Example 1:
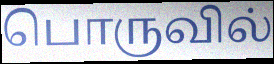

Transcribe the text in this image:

பொருவில்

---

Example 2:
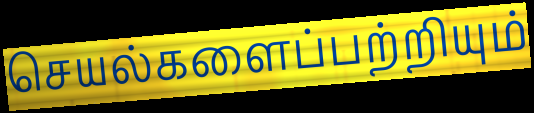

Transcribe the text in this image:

செயல்களைப்பற்றியும்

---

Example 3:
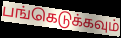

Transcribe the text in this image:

பங்கெடுக்கவும்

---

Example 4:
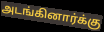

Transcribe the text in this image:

அடங்கினார்க்கு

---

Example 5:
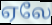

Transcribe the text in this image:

ஏலே